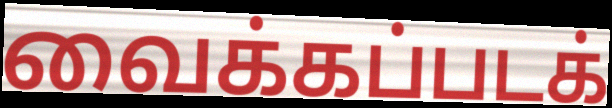
வைக்கப்படக்